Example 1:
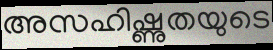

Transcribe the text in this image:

അസഹിഷ്ണുതയുടെ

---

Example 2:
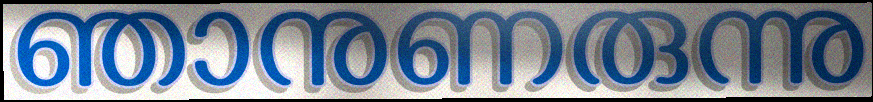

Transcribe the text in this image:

ഞാനുണരുന്നു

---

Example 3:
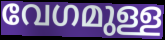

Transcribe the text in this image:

വേഗമുള്ള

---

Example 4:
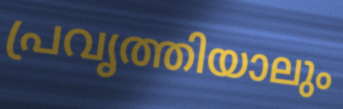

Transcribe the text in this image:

പ്രവൃത്തിയാലും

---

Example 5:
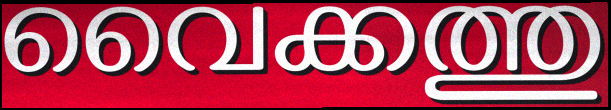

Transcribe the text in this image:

വൈക്കത്തു